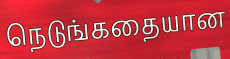
நெடுங்கதையான